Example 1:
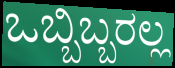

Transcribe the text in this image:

ಒಬ್ಬಿಬ್ಬರಲ್ಲ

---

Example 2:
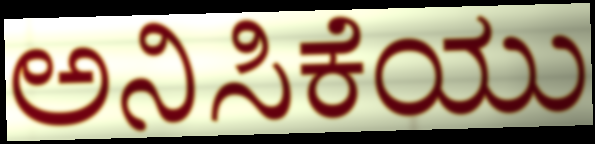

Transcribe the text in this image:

ಅನಿಸಿಕೆಯು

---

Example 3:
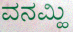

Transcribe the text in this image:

ವನಮ್ಹಿ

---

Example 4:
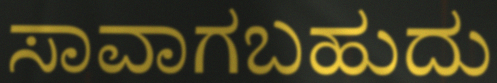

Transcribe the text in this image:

ಸಾವಾಗಬಹುದು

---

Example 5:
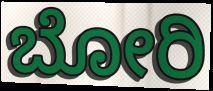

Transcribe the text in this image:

ಬೋರಿ